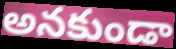
అనకుండా